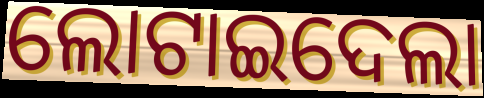
ଲୋଟାଇଦେଲା